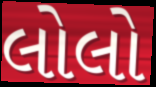
લોલો